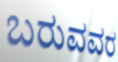
ಬರುವವರ